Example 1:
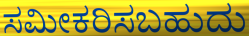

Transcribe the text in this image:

ಸಮೀಕರಿಸಬಹುದು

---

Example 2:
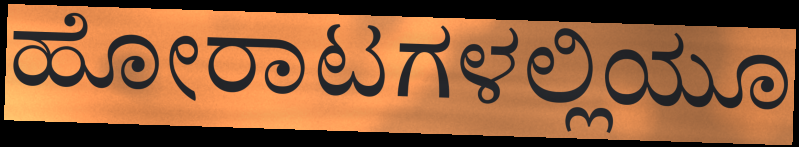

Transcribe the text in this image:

ಹೋರಾಟಗಳಲ್ಲಿಯೂ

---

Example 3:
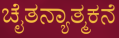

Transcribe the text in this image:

ಚೈತನ್ಯಾತ್ಮಕನೆ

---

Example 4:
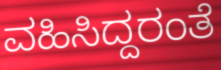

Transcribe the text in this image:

ವಹಿಸಿದ್ದರಂತೆ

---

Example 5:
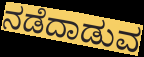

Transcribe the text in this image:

ನಡೆದಾಡುವ